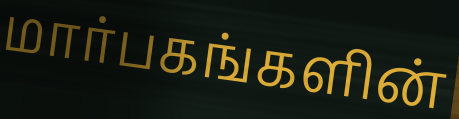
மார்பகங்களின்